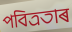
পবিত্ৰতাৰ